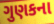
ગુણકના